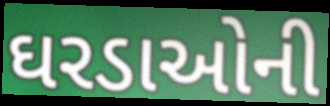
ઘરડાઓની